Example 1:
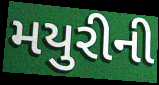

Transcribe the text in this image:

મયુરીની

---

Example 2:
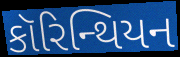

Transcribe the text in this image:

કૉરિન્થિયન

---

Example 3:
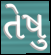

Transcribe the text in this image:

તેષુ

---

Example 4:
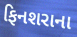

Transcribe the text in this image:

ફિનશરાના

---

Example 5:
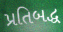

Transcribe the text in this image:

પ્રતિબદ્ધ